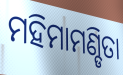
ମହିମାମଣ୍ଡିତା